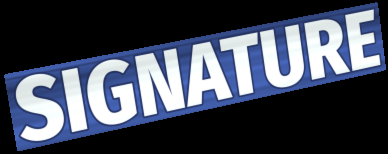
SIGNATURE